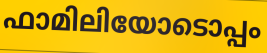
ഫാമിലിയോടൊപ്പം